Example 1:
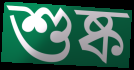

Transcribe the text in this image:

শুষ্ক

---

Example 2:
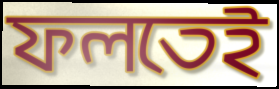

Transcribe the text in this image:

ফলতেই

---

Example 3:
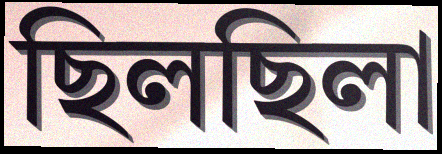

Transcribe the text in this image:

ছিলছিলা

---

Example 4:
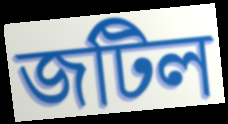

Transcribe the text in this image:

জটিল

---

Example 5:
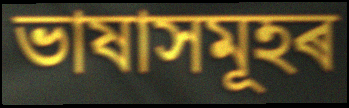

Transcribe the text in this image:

ভাষাসমূহৰ